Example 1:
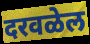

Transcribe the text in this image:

दरवळेल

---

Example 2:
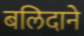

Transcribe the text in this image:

बलिदाने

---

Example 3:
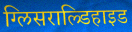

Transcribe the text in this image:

ग्लिसराल्डिहाइड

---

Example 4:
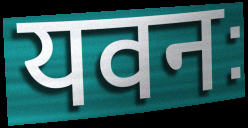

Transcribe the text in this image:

यवनः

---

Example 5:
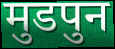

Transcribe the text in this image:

मुडपुन